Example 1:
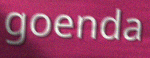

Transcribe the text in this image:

goenda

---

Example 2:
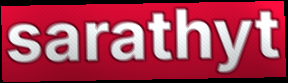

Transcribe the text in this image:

sarathyt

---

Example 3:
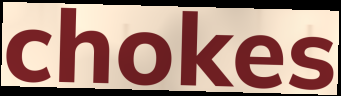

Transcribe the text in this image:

chokes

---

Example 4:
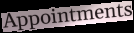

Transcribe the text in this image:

Appointments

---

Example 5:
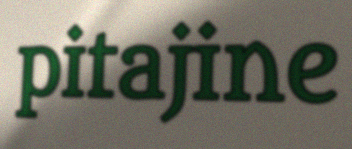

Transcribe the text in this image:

pitajine